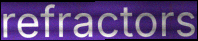
refractors